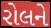
રોલને